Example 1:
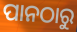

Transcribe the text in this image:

ପାନଠାରୁ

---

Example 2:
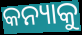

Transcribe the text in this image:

କନ୍ୟାକୁ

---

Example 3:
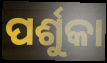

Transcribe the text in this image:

ପର୍ଶୁକା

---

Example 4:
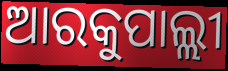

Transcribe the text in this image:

ଆରକୁପାଲ୍ଲୀ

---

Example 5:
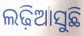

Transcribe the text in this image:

ଲଢ଼ିଆସୁଛି